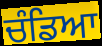
ਚੰਡਿਆ